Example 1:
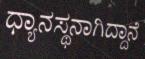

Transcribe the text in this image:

ಧ್ಯಾನಸ್ಥನಾಗಿದ್ದಾನೆ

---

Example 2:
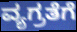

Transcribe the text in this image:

ವ್ಯಗ್ರತೆಗೆ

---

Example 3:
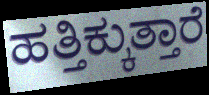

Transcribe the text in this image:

ಹತ್ತಿಕ್ಕುತ್ತಾರೆ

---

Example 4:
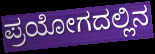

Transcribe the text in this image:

ಪ್ರಯೋಗದಲ್ಲಿನ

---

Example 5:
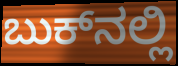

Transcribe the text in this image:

ಬುಕ್‌ನಲ್ಲಿ